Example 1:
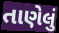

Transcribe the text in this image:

તાણેલું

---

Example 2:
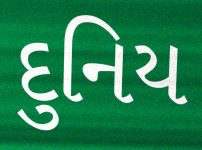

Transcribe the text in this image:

દુનિય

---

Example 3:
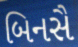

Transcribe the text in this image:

બિનસૈ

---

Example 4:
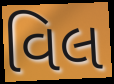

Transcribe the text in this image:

વિલ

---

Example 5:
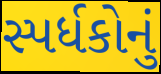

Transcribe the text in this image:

સ્પર્ધકોનું